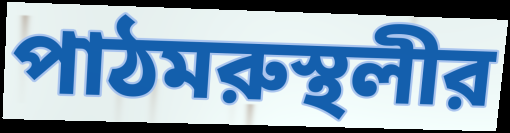
পাঠমরুস্থলীর